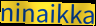
ninaikka